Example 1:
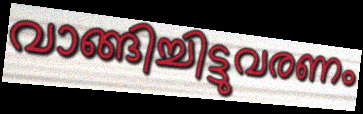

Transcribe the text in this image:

വാങ്ങിച്ചിട്ടുവരണം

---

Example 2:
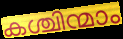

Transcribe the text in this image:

കശ്ചിന്മാം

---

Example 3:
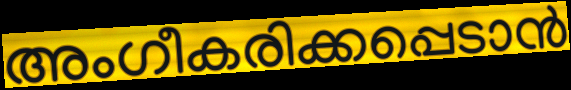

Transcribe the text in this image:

അംഗീകരിക്കപ്പെടാൻ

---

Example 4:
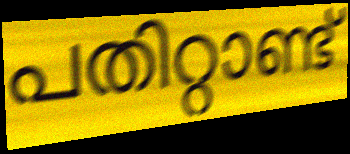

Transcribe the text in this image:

പതിറ്റാണ്ട്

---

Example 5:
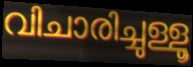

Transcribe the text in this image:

വിചാരിച്ചുള്ളൂ